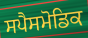
ਸਪੈਸਮੋਡਿਕ